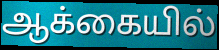
ஆக்கையில்